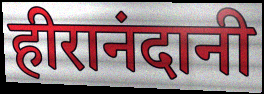
हीरानंदानी